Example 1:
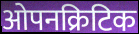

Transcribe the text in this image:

ओपनक्रिटिक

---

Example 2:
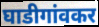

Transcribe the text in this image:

घाडीगांवकर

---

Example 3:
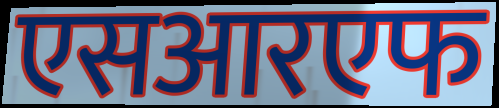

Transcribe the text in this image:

एसआरएफ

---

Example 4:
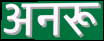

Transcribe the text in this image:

अनरू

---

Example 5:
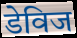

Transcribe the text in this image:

डेविज